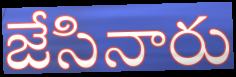
జేసినారు